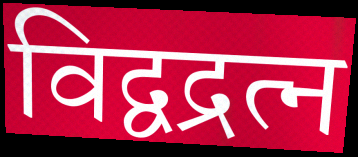
विद्वद्रत्न